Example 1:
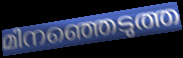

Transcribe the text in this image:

മിനഞ്ഞെടുത്ത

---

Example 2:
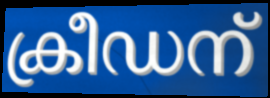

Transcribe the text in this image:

ക്രീഡന്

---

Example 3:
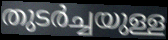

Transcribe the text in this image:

തുടർച്ചയുള്ള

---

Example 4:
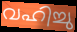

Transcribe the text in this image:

വഹിച്ചു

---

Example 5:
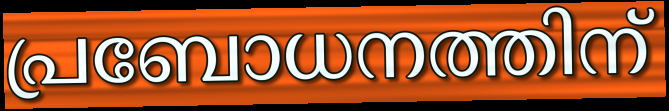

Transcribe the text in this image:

പ്രബോധനത്തിന്